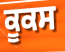
ਕੂਕਸ